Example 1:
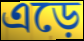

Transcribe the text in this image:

এড়ে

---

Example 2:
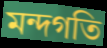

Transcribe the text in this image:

মন্দগতি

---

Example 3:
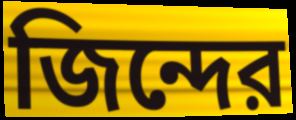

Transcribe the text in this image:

জিন্দের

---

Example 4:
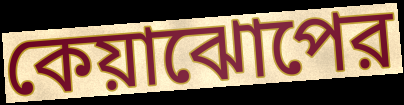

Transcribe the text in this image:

কেয়াঝোপের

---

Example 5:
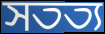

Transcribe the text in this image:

সতত্য